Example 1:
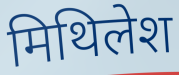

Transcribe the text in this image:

मिथिलेश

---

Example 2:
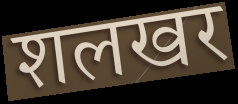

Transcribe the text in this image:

शलखर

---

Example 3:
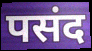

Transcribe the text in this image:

पसंद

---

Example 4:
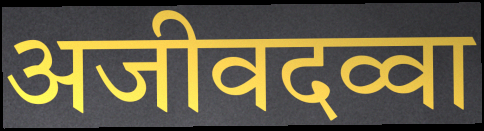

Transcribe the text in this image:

अजीवदव्वा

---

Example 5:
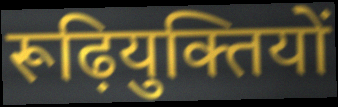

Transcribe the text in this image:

रूढ़ियुक्तियों